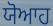
ਯੋਆਹ